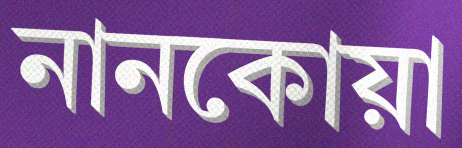
নানকোয়া